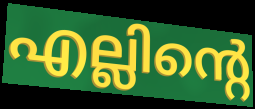
എല്ലിന്റെ